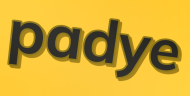
padye